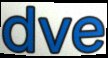
dve